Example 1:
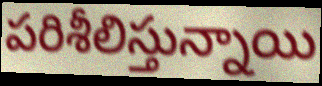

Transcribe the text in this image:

పరిశీలిస్తున్నాయి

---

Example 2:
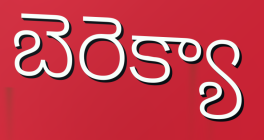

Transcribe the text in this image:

బెరెక్యా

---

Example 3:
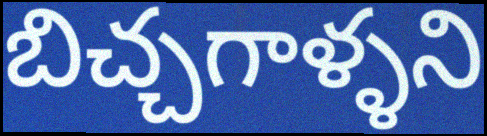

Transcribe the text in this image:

బిచ్చగాళ్ళని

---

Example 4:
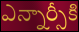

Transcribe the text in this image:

ఎన్నార్సీకి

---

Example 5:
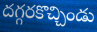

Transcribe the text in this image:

దగ్గరకొచ్చిండు